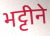
भट्टीने